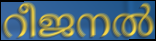
റീജനൽ